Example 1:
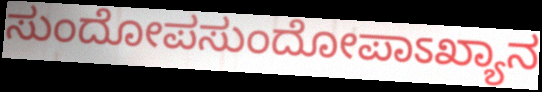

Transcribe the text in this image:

ಸುಂದೋಪಸುಂದೋಪಾಽಖ್ಯಾನ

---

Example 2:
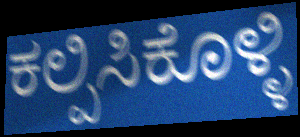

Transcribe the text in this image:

ಕಲ್ಪಿಸಿಕೊಳ್ಳಿ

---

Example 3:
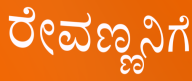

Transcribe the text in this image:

ರೇವಣ್ಣನಿಗೆ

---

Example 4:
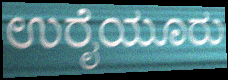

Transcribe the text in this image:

ಉರೈಯೂರು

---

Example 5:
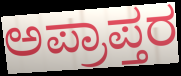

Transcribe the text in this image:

ಅಪ್ರಾಪ್ತರ